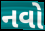
નવો